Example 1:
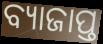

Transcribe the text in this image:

ବ୍ୟାଜାପ୍ତ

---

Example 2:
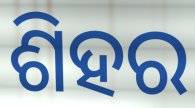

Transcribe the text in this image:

ଶିହର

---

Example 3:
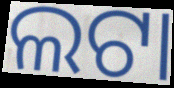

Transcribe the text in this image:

ଲଟା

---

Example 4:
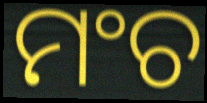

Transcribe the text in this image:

ମଂଚ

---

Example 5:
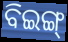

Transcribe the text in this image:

ବିଇଙ୍ଗ୍